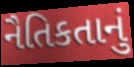
નૈતિકતાનું